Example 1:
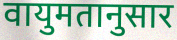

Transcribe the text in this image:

वायुमतानुसार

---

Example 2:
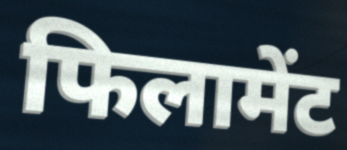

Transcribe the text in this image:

फिलामेंट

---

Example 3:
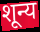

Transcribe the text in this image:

शून्य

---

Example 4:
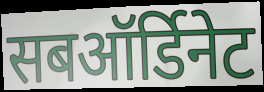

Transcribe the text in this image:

सबऑर्डिनेट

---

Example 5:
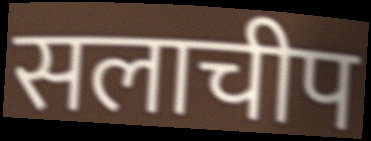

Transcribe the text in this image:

सलाचीप